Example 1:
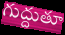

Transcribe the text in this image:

గుద్దుతూ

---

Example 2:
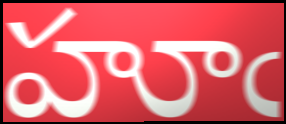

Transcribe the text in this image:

హూఁ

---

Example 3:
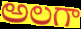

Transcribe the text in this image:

అలగా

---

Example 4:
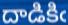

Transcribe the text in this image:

దాడికిఁ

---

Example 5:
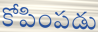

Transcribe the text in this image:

కోపింపడు